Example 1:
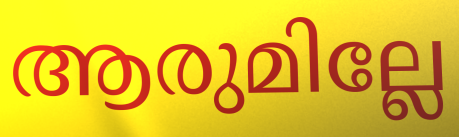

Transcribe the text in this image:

ആരുമില്ലേ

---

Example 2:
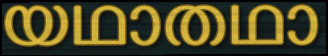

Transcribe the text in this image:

യഥാതഥാ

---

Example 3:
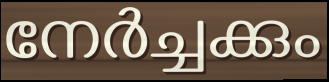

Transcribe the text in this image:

നേർച്ചക്കും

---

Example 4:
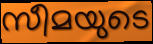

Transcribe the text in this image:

സീമയുടെ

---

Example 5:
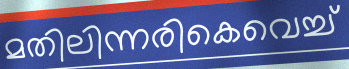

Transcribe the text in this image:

മതിലിന്നരികെവെച്ച്